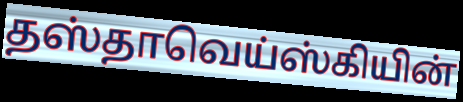
தஸ்தாவெய்ஸ்கியின்